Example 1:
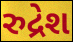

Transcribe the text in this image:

રુદ્રેશ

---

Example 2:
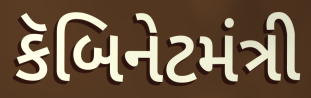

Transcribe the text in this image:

કૅબિનેટમંત્રી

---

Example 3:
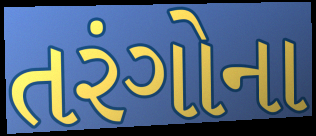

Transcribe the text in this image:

તરંગોના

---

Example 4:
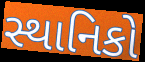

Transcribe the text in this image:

સ્થાનિકો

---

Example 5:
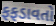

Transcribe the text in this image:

ફફડાવતો